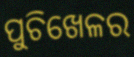
ପୁଚିଖେଳର